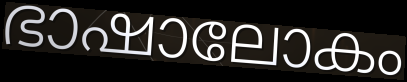
ഭാഷാലോകം